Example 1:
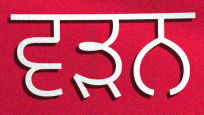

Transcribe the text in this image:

ਵਡ਼ਨ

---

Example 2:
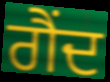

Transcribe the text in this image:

ਗੈਂਦ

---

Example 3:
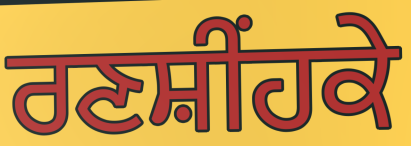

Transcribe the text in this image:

ਰਣਸ਼ੀਂਹਕੇ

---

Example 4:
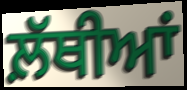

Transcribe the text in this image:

ਲ਼ੱਥੀਆਂ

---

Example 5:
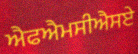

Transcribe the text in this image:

ਐਫਐਮਸੀਐਸਏ